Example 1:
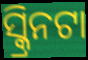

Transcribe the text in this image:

ସ୍କ୍ରିନଟା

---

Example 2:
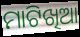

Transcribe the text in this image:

ମାଟିଖିଆ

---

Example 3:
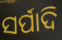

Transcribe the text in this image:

ସର୍ପାଦି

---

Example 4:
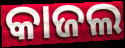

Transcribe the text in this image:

କାଜଲ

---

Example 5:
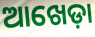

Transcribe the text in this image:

ଆଖେଡ଼ା